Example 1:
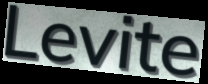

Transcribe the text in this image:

Levite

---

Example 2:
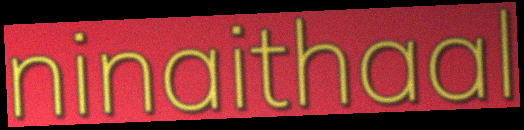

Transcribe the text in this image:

ninaithaal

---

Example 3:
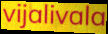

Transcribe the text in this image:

vijalivala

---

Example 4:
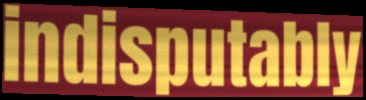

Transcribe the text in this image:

indisputably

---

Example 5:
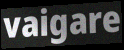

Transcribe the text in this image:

vaigare